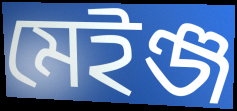
মেইঞ্জ